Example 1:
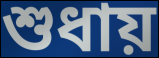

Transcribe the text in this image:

শুধায়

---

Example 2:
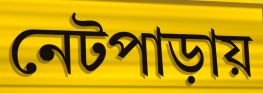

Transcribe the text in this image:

নেটপাড়ায়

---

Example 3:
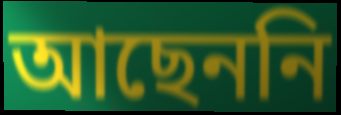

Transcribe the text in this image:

আছেননি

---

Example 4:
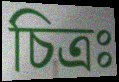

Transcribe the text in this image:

চিত্রঃ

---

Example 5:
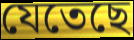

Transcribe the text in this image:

যেতেছে